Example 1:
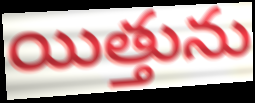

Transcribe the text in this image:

యిత్తును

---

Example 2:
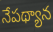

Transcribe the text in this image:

నేపథ్యాన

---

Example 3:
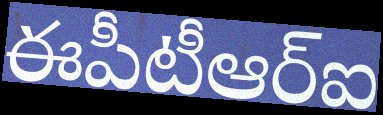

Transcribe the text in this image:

ఈపీటీఆర్ఐ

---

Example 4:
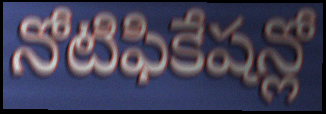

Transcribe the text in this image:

నోటిఫికేషన్లో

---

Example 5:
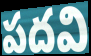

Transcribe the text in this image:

పదవి